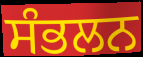
ਸੰਭਲਨ